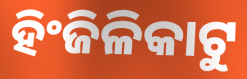
ହିଂଜିଳିକାଟୁ